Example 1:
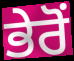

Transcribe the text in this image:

ਭੇਰੋਂ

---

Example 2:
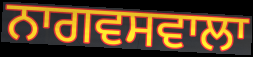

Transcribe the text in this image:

ਨਾਗਵਸਵਾਲਾ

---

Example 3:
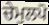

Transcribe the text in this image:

ਚੇਮੁਲਪੋ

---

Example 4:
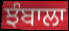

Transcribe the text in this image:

ਝੰਬਾਲਾ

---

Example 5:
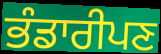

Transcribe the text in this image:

ਭੰਡਾਰੀਪਣ